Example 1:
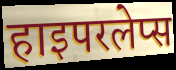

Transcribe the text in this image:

हाइपरलेप्स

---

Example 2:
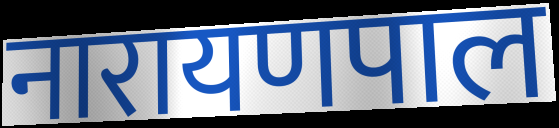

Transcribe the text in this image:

नारायणपाल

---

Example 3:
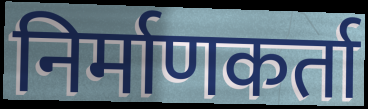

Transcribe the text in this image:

निर्माणकर्ता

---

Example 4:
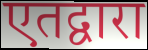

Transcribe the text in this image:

एतद्वारा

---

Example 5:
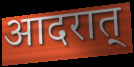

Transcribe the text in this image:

आदरात्